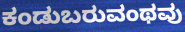
ಕಂಡುಬರುವಂಥವು